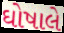
ઘોષાલે